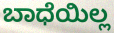
ಬಾಧೆಯಿಲ್ಲ